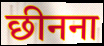
छीनना